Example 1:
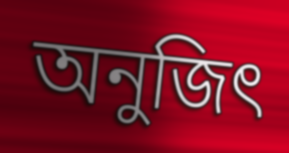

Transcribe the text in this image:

অনুজিৎ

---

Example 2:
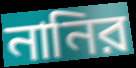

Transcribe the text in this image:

নানির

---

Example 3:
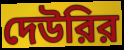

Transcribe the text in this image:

দেউরির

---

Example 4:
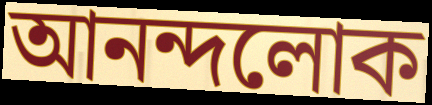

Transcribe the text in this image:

আনন্দলোক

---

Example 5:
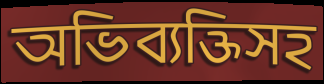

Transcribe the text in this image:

অভিব্যক্তিসহ